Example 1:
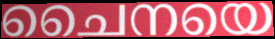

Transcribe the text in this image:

ചൈനയെ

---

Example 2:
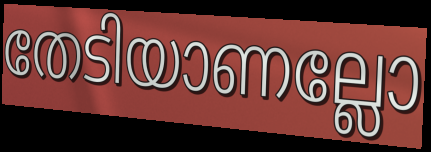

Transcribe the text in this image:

തേടിയാണല്ലോ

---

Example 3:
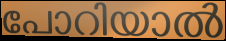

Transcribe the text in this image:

പോറിയാൽ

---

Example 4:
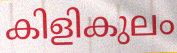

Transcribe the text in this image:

കിളികുലം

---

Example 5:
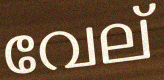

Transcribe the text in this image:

വേല്